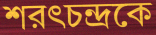
শরৎচন্দ্রকে